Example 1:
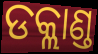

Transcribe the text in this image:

ଡକ୍ଲାଣ୍ଡ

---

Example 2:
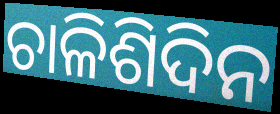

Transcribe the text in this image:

ଚାଳିଶିଦିନ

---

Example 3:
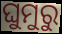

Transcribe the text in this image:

ଘୁମୁରୁ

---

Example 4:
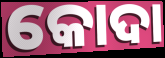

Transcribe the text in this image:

କୋଦା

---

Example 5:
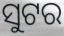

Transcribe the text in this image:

ସୁଟର